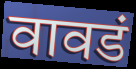
वावडं